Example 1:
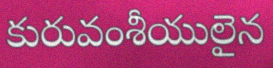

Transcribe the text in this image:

కురువంశీయులైన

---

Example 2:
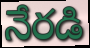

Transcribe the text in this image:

నేరడి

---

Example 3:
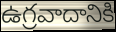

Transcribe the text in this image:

ఉగ్రవాదానికి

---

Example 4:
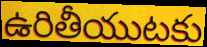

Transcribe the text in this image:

ఉరితీయుటకు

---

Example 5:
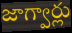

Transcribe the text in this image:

జాగ్వార్లు